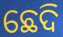
ଛେଦି